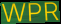
WPR